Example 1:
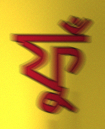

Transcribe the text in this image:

ফুঁ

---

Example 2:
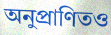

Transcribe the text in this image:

অনুপ্রাণিতও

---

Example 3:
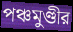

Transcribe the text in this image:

পঞ্চমুণ্ডীর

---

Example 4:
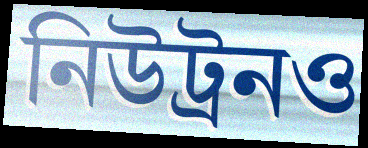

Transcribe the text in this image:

নিউট্রনও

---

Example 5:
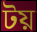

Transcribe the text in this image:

টয়